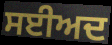
ਸਈਅਦ